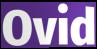
Ovid